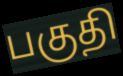
பகுதி